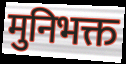
मुनिभक्त